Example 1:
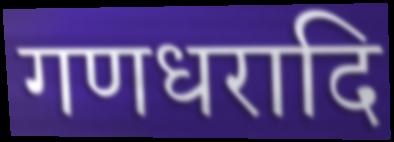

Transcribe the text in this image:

गणधरादि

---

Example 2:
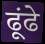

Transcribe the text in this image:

ढूंढे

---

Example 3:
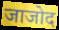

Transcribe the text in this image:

जाजोद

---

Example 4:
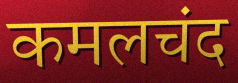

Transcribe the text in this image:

कमलचंद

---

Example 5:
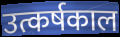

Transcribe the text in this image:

उत्कर्षकाल